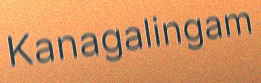
Kanagalingam